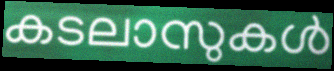
കടലാസുകൾ